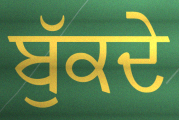
ਬੁੱਕਦੇ